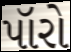
પૉરો